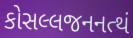
કોસલ્લજનનત્થં